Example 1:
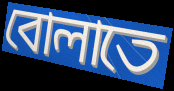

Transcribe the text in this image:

বোলাতে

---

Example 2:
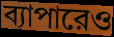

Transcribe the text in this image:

ব্যাপারেও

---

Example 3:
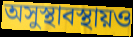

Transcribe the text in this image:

অসুস্থাবস্থায়ও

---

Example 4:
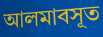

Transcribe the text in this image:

আলমাবসূত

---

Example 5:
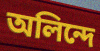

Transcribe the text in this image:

অলিন্দে